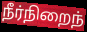
நீர்நிறைந்